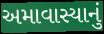
અમાવાસ્યાનું